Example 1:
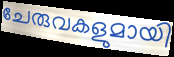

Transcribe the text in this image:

ചേരുവകളുമായി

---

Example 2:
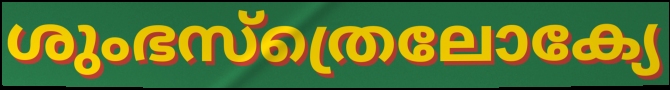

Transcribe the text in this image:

ശുംഭസ്ത്രെലോക്യേ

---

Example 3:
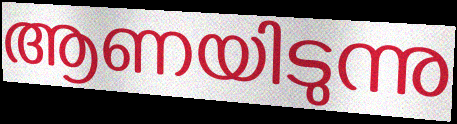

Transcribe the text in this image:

ആണയിടുന്നു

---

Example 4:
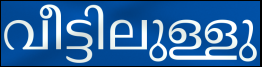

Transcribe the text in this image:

വീട്ടിലുള്ളു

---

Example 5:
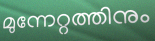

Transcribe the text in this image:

മുന്നേറ്റത്തിനും